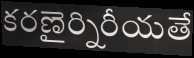
కరణైర్నిరీయతే